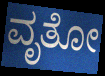
ವೃತೋ